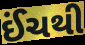
ઈંચથી